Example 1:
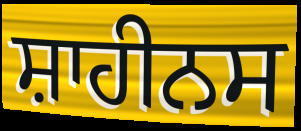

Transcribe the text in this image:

ਸ਼ਾਹੀਨਸ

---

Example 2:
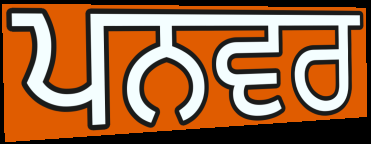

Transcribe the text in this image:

ਪਨਵਰ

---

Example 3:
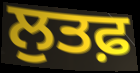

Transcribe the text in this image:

ਲੁਤਫ਼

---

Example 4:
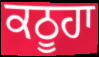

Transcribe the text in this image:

ਕਠੂਹਾ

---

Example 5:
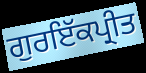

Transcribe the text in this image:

ਗੁਰਇੱਕਪ੍ਰੀਤ